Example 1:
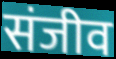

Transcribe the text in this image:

संजीव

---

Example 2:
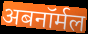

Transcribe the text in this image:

अबनॉर्मल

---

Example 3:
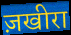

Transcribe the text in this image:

ज़खीरा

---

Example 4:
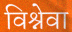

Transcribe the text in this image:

विश्नेवा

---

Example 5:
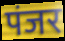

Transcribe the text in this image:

पंजर